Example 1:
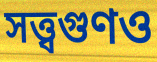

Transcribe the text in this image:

সত্ত্বগুণও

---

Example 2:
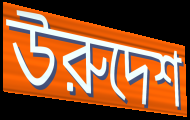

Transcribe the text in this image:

উরুদেশ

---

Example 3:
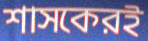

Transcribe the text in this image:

শাসকেরই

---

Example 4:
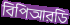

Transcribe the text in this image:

বিপিআরডি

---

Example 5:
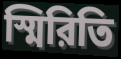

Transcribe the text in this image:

স্মিরিতি